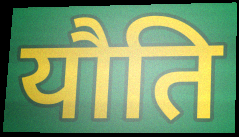
यौति